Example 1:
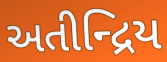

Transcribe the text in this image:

અતીન્દ્રિય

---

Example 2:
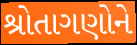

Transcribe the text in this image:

શ્રોતાગણોને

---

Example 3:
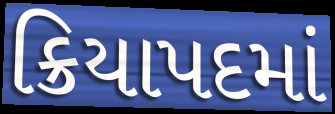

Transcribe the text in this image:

ક્રિયાપદમાં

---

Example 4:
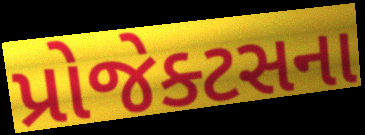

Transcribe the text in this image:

પ્રોજેક્ટસના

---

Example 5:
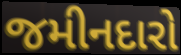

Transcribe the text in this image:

જમીનદારો